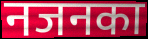
नजनका